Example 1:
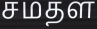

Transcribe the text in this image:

சமதள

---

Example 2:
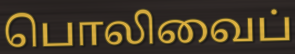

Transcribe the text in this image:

பொலிவைப்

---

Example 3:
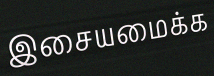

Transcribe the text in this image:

இசையமைக்க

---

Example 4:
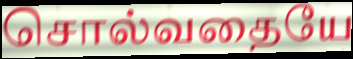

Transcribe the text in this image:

சொல்வதையே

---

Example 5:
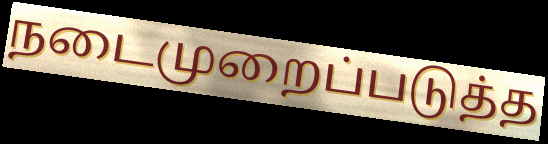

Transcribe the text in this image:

நடைமுறைப்படுத்த